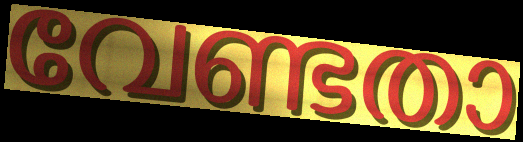
വേണ്ടതാ